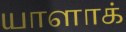
யாளாக்